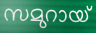
സമുറായ്